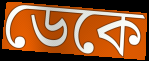
ডেকে